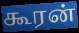
கூரன்